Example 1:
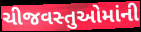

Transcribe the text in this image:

ચીજવસ્તુઓમાંની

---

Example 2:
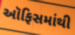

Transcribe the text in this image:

ઑફિસમાંથી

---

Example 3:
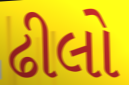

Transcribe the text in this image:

ઢીલો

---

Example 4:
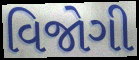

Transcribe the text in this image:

વિજોગી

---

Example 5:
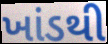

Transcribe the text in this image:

ખાંડથી